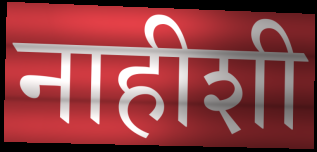
नाहीशी